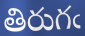
తిరుగఁ